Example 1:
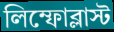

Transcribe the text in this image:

লিম্ফোব্লাস্ট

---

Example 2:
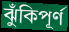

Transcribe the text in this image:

ঝুঁকিপূর্ণ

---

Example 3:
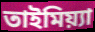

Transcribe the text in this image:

তাইমিয়্যা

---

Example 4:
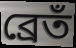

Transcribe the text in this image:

ব্রেতঁ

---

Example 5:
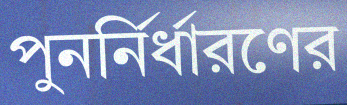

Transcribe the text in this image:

পুনর্নির্ধারণের